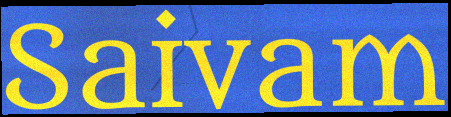
Saivam